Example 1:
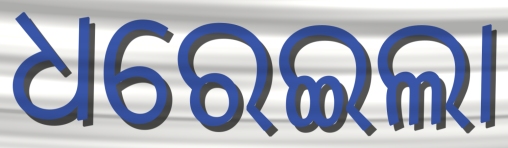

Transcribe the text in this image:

ଧରେଇଲା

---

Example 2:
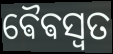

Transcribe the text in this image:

ଵୈଵସ୍ୱତ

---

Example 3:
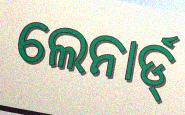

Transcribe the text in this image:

ଲେନାର୍ଡ୍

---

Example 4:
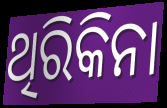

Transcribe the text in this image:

ଥିରିକିନା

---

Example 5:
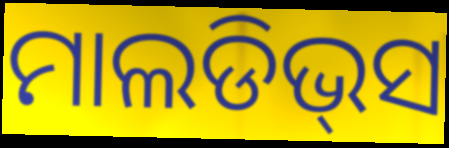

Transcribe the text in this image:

ମାଲଡିଭ୍‌ସ